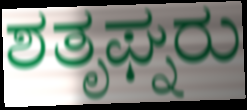
ಶತೃಘ್ನರು